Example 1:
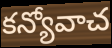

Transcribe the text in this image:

కన్యోవాచ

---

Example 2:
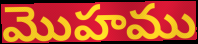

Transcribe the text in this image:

మొహము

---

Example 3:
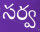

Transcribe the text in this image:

సర్వ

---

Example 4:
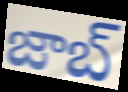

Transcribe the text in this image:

జాబ్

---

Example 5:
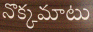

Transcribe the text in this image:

నొక్కమాటు